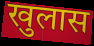
खुलास